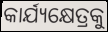
କାର୍ଯ୍ୟକ୍ଷେତ୍ରକୁ